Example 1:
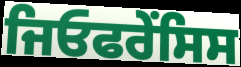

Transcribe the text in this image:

ਜਿਓਫਰੇਂਸਿਸ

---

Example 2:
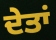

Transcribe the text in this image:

ਦੇਤਾਂ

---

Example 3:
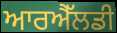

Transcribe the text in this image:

ਆਰਐੱਲਡੀ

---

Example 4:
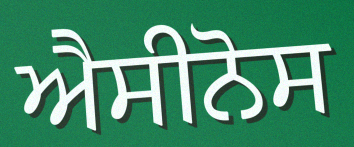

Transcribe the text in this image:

ਐਸੀਨੋਸ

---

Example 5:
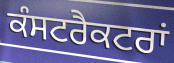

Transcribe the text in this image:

ਕੰਸਟਰੈਕਟਰਾਂ